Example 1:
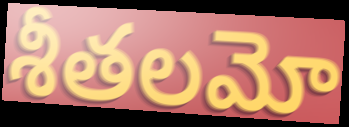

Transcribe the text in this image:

శీతలమో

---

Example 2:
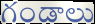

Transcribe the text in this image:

గండాలు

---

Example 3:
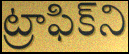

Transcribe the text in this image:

ట్రాఫిక్‌ని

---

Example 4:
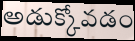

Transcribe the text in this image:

అడుక్కోవడం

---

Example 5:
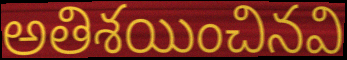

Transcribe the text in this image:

అతిశయించినవి